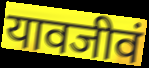
यावजीवं